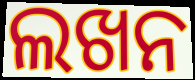
ଲଖନ